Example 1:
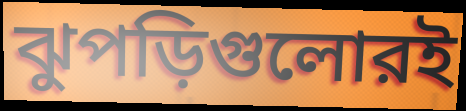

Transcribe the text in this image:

ঝুপড়িগুলোরই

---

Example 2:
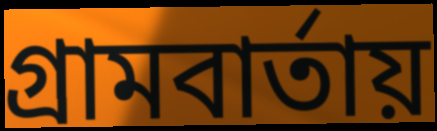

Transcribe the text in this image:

গ্রামবার্তায়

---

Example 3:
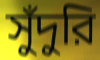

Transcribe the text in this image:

সুঁদুরি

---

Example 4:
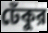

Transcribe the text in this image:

ঢেঁকুর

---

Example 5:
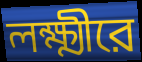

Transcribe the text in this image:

লক্ষ্মীরে